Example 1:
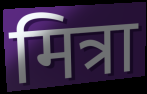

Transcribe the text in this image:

मित्रा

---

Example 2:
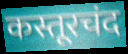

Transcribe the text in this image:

कस्तूरचंद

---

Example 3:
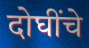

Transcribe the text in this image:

दोघींचे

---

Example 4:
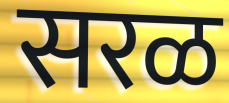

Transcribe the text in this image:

सरळ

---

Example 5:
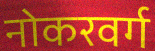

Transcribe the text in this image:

नोकरवर्ग